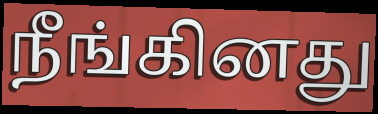
நீங்கினது